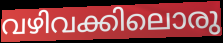
വഴിവക്കിലൊരു